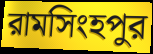
রামসিংহপুর